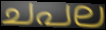
ചപല